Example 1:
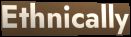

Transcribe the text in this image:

Ethnically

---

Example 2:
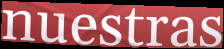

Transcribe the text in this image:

nuestras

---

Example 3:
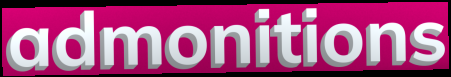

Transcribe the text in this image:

admonitions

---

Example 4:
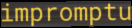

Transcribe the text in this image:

impromptu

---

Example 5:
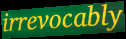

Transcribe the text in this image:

irrevocably